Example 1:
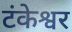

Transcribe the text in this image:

टंकेश्वर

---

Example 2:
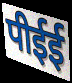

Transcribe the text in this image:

पीईई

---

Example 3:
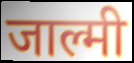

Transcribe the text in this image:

जाल्मी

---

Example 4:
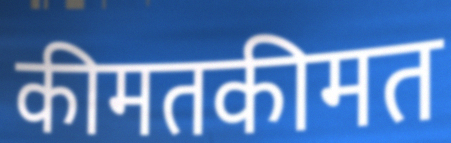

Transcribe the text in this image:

कीमतकीमत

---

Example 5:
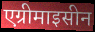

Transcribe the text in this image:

एग्रीमाइसीन